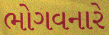
ભોગવનારે